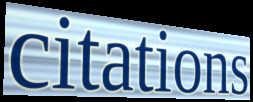
citations